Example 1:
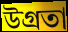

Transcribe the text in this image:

উগ্ৰতা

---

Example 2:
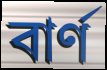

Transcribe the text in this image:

বাৰ্ণ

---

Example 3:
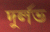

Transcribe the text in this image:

দুৰ্লভ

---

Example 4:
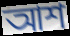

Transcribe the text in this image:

আশ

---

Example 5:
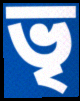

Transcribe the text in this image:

ভৃ